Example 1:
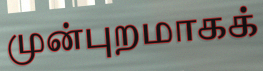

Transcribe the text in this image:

முன்புறமாகக்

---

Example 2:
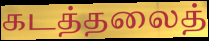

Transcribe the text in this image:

கடத்தலைத்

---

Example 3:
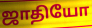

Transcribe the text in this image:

ஜாதியோ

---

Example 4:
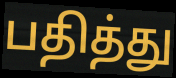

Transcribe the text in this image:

பதித்து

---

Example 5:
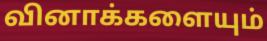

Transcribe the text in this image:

வினாக்களையும்